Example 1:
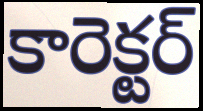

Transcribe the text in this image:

కారెక్టర్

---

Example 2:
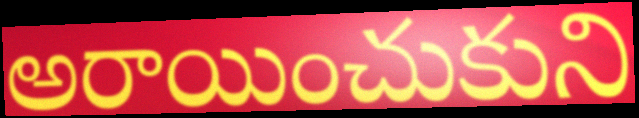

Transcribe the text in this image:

అరాయించుకుని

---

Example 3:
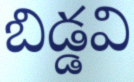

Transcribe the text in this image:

బిడ్డవి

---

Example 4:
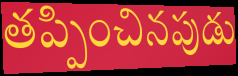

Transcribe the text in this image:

తప్పించినపుడు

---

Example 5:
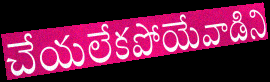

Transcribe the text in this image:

చేయలేకపోయేవాడిని